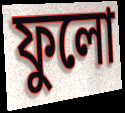
ফুলো